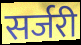
सर्जरी